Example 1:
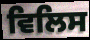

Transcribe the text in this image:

ਵਿਲਿਸ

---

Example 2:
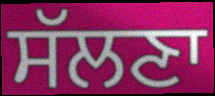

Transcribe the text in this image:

ਸੱਲਣਾ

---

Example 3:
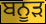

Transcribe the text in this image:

ਬਨੂੜ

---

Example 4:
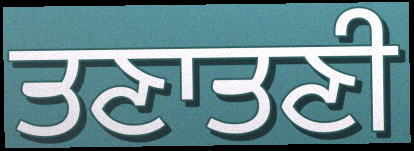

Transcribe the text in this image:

ਤਣਾਤਣੀ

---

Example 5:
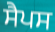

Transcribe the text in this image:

ਸੈਪਸ